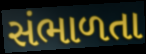
સંભાળતા